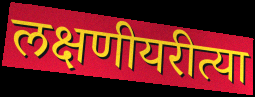
लक्षणीयरीत्या